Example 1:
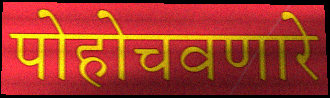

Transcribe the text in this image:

पोहोचवणारे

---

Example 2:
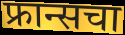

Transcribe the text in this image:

फ्रान्सचा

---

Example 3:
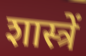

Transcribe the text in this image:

शास्त्रें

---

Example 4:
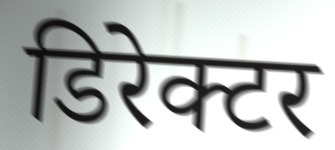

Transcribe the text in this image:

डिरेक्टर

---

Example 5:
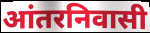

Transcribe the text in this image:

आंतरनिवासी